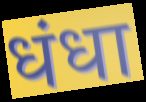
धंधा